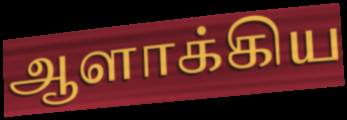
ஆளாக்கிய